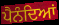
ਪੈਨੰਦਿਆਂ